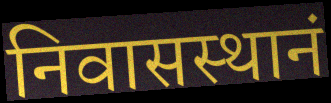
निवासस्थानं